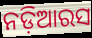
ନଡ଼ିଆରସ